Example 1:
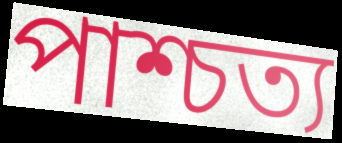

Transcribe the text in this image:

পাশ্চত্য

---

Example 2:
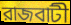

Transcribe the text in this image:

রাজবাটী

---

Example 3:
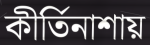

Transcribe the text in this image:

কীর্তিনাশায়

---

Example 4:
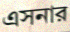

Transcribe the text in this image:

এসনার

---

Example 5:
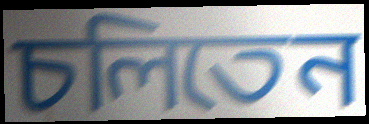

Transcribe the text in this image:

চলিতেন